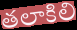
తలాకిలి